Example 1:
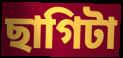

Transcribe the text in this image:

ছাগিটা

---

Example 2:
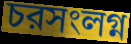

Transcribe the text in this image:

চরসংলগ্ন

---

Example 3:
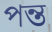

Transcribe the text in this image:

পন্ত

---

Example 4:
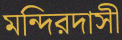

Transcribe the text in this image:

মন্দিরদাসী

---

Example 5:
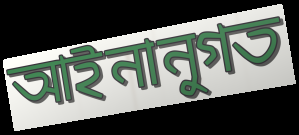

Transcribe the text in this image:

আইনানুগত